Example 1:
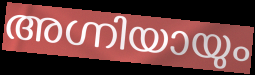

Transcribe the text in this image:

അഗ്നിയായും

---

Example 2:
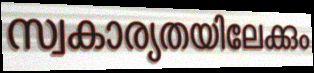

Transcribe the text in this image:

സ്വകാര്യതയിലേക്കും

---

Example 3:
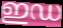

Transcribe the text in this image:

ഇഡ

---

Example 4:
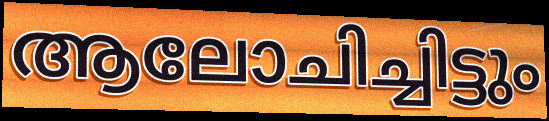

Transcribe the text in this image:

ആലോചിച്ചിട്ടും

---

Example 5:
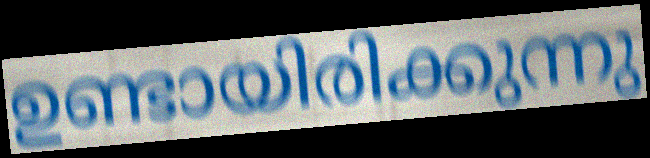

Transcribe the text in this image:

ഉണ്ടായിരിക്കുന്നു